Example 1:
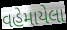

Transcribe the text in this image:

વહેમાયેલા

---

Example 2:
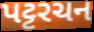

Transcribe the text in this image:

પટ્ટરચન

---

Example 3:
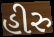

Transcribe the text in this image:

હીરુ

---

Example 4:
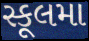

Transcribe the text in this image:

સ્કૂલમા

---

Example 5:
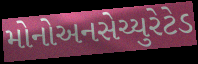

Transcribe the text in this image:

મોનોઅનસેચ્યુરેટેડ